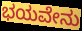
ಭಯವೇನು